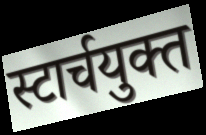
स्टार्चयुक्त